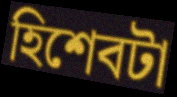
হিশেবটা